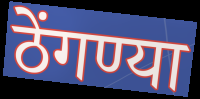
ठेंगण्या